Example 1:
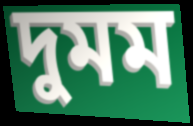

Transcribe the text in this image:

দুমম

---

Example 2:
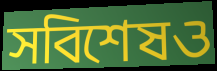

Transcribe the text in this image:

সবিশেষও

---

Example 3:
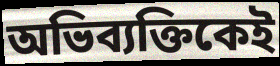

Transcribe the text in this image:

অভিব্যক্তিকেই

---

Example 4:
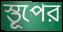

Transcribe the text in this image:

স্তূপের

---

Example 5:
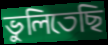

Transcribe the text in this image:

ভুলিতেছি